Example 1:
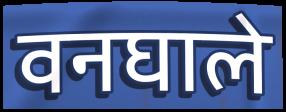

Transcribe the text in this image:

वनघाले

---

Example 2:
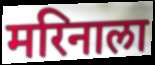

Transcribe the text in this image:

मरिनाला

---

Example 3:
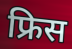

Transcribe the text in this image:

फ्रिस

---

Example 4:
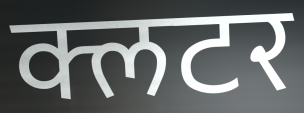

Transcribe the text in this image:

क्लटर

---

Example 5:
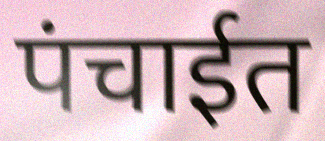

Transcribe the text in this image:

पंचाईत